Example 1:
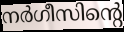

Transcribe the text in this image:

നർഗീസിന്റെ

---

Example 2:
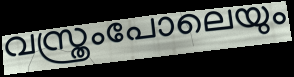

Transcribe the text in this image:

വസ്ത്രംപോലെയും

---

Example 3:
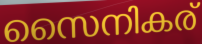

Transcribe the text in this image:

സൈനികര്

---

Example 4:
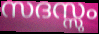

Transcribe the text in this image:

സദസ്സും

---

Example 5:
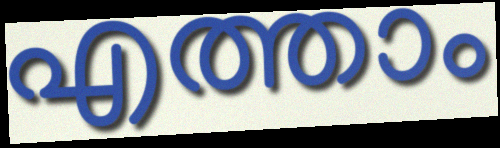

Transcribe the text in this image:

എത്താം